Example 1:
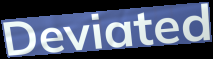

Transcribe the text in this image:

Deviated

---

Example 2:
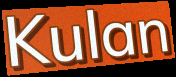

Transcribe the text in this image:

Kulan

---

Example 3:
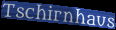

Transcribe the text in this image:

Tschirnhaus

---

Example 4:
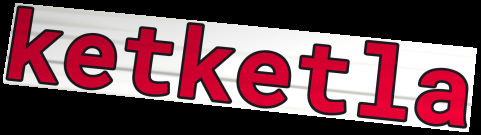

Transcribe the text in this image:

ketketla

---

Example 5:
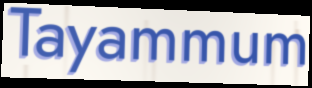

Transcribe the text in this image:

Tayammum